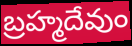
బ్రహ్మదేవుం